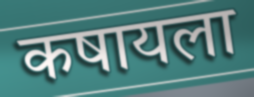
कषायला